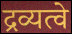
द्रव्यत्वे